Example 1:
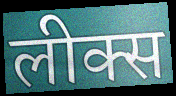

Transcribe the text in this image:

लीक्स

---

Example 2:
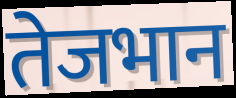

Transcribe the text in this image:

तेजभान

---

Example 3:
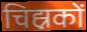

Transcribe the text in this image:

चिह्नकों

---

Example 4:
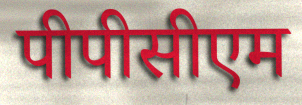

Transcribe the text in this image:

पीपीसीएम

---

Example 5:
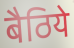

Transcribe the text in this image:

बैठिये